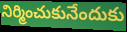
నిర్మించుకునేందుకు